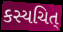
કસ્યચિત્